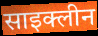
साइक्लीन